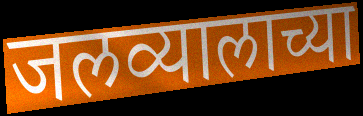
जलव्यालाच्या